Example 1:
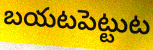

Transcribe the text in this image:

బయటపెట్టుట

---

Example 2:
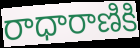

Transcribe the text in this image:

రాధారాణికి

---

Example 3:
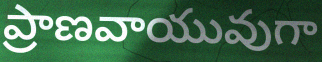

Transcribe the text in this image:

ప్రాణవాయువుగా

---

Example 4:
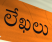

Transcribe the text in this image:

లేఖలు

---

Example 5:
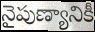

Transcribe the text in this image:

నైపుణ్యానికీ